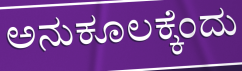
ಅನುಕೂಲಕ್ಕೆಂದು